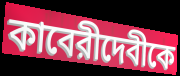
কাবেরীদেবীকে